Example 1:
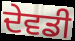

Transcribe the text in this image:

ਦੇਵਡੀ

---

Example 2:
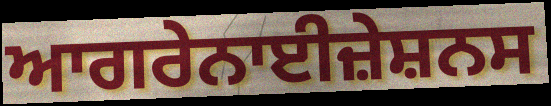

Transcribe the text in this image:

ਆਗਰੇਨਾਈਜ਼ੇਸ਼ਨਸ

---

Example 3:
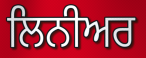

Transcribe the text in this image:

ਲਿਨੀਅਰ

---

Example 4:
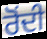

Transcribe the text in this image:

ਰੋਂਦੀ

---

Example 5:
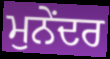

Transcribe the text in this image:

ਮੁਨੇਂਦਰ